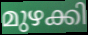
മുഴക്കി